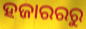
ହଜାରରରୁ